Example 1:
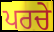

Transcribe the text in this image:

ਪਰਚੇ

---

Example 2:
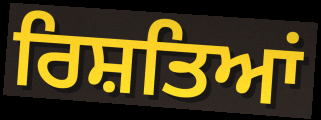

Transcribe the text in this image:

ਰਿਸ਼ਤਿਆਂ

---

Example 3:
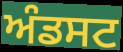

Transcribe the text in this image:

ਅੰਡਸਟ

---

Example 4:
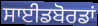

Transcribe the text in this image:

ਸਾਈਡਬੋਰਡਾਂ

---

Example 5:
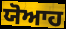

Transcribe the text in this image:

ਯੋਆਹ